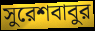
সুরেশবাবুর